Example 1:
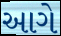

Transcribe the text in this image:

આગે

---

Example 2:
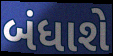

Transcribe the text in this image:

બંધાશે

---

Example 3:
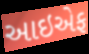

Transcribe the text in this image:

આઇએફ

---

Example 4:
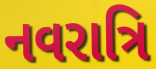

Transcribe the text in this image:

નવરાત્રિ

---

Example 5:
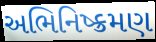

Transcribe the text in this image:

અભિનિષ્ક્રમણ